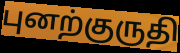
புனற்குருதி